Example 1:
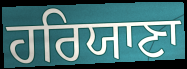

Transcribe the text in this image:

ਹਰਿਯਾਣਾ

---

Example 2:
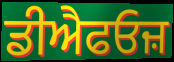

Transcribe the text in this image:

ਡੀਐਫਓਜ਼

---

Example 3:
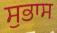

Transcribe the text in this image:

ਸੁਭਾਸ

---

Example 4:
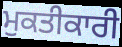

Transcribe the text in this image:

ਮੁਕਤੀਕਾਰੀ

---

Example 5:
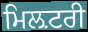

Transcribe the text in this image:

ਮਿਲ਼ਟਰੀ